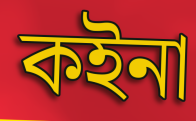
কইনা